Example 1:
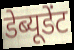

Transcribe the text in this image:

डेब्यूडेंट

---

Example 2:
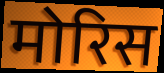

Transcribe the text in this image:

मोरिस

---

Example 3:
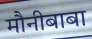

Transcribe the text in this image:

मौनीबाबा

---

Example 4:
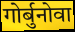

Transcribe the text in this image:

गोर्बुनोवा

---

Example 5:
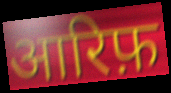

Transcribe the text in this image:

आरिफ़